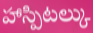
హాస్పిటల్కు